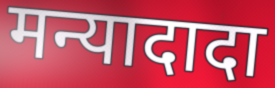
मन्यादादा